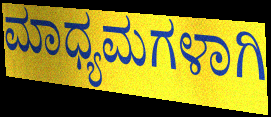
ಮಾಧ್ಯಮಗಳಾಗಿ